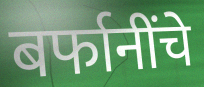
बर्फानींचे